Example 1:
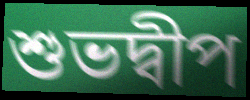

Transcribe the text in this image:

শুভদ্বীপ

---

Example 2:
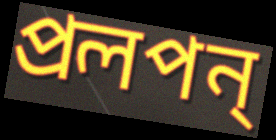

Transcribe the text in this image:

প্রলপন্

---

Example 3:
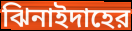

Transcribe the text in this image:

ঝিনাইদাহের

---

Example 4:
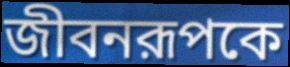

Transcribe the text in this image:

জীবনরূপকে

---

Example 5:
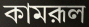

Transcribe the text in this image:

কামরূল